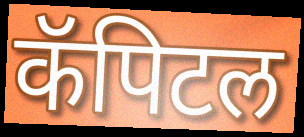
कॅपिटल